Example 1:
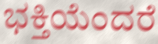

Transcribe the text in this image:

ಭಕ್ತಿಯೆಂದರೆ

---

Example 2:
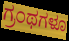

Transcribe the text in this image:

ಗ್ರಂಥಗಳೂ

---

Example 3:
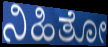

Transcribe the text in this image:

ನಿಹಿತೋ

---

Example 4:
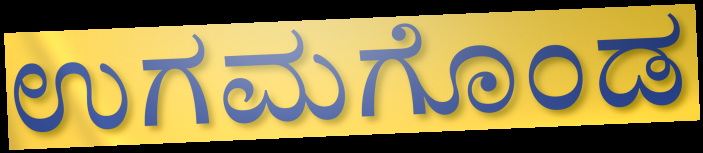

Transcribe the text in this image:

ಉಗಮಗೊಂಡ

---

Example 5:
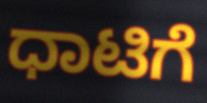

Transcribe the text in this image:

ಧಾಟಿಗೆ